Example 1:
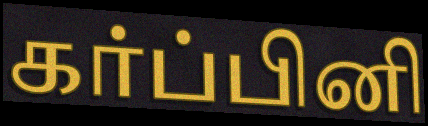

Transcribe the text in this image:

கர்ப்பினி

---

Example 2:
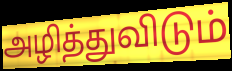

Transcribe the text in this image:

அழித்துவிடும்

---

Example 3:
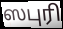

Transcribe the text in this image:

ஸபுரி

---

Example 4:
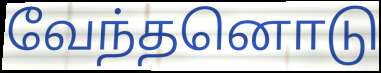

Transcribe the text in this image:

வேந்தனொடு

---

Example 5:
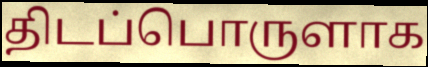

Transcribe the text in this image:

திடப்பொருளாக